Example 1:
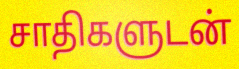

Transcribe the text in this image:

சாதிகளுடன்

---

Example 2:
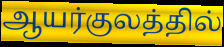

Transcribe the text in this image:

ஆயர்குலத்தில்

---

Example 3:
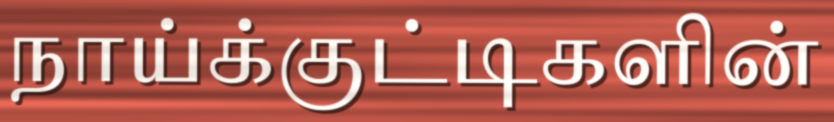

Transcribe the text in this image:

நாய்க்குட்டிகளின்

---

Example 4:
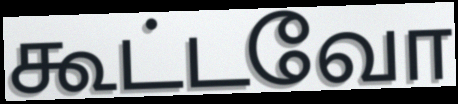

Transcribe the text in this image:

கூட்டவோ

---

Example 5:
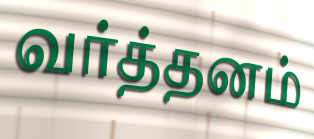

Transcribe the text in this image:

வர்த்தனம்